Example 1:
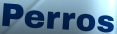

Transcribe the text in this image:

Perros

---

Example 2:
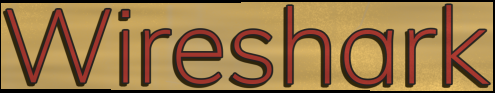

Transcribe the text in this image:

Wireshark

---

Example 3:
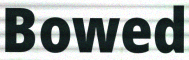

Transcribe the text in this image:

Bowed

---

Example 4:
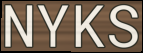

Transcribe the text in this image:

NYKS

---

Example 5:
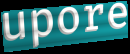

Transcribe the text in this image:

upore